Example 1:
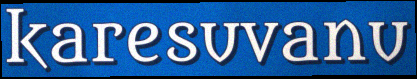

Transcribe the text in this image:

karesuvanu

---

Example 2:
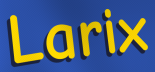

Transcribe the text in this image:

Larix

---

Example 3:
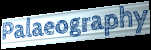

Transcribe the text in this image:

Palaeography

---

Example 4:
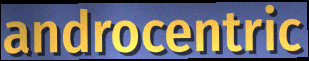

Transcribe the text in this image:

androcentric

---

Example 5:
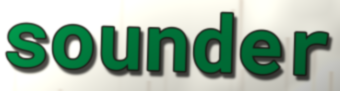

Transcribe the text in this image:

sounder